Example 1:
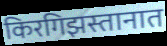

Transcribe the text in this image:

किरगिझस्तानात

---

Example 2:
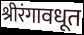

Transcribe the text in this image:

श्रीरंगावधूत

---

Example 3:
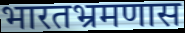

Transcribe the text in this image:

भारतभ्रमणास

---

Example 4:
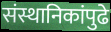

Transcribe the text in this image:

संस्थानिकांपुढे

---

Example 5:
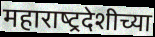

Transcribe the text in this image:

महाराष्ट्रदेशीच्या